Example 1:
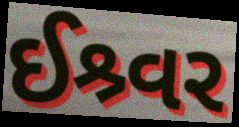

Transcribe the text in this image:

ઈશ્ર્વર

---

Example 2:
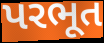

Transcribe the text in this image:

પરભૂત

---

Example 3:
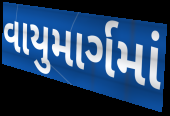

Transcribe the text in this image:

વાયુમાર્ગમાં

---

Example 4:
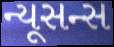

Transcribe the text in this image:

ન્યૂસન્સ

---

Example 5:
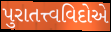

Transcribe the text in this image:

પુરાતત્ત્વવિદોએ